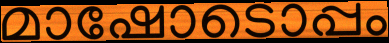
മാഷോടൊപ്പം